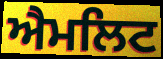
ਐਮਲਿਟ